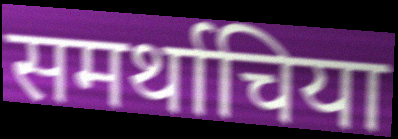
समर्थाचिया